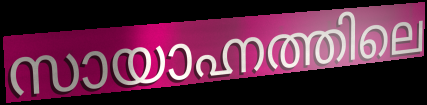
സായാഹ്നത്തിലെ